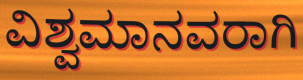
ವಿಶ್ವಮಾನವರಾಗಿ